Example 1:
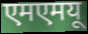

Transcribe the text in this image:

एमएमयू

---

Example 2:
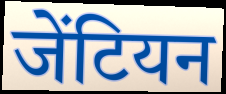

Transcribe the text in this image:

जेंटियन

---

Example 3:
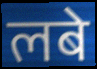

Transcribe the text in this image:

लबे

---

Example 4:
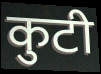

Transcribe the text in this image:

कुटी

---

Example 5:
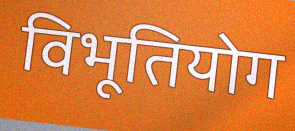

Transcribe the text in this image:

विभूतियोग